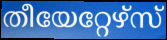
തീയേറ്റേഴ്സ്